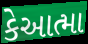
કેઆત્મા